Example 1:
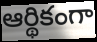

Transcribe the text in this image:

ఆర్థికంగా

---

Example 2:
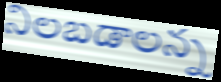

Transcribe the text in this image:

నిలబడాలన్న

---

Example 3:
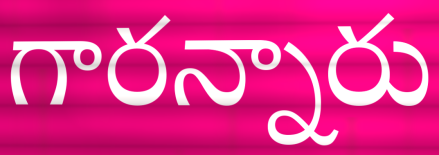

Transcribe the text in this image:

గారన్నారు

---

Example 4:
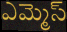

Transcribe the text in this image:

ఎమ్మెస్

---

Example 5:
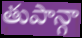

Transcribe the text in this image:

తుపాన్గా